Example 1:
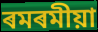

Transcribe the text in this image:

ৰমৰমীয়া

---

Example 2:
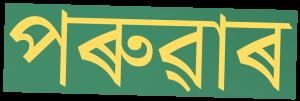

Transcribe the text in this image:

পৰুৱাৰ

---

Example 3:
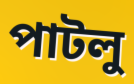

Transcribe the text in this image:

পাটলু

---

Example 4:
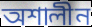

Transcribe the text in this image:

অশালীন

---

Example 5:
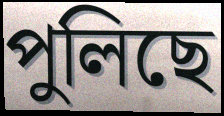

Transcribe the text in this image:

পুলিছে